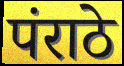
पंराठे